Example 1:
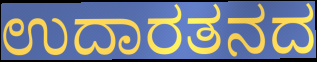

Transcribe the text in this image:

ಉದಾರತನದ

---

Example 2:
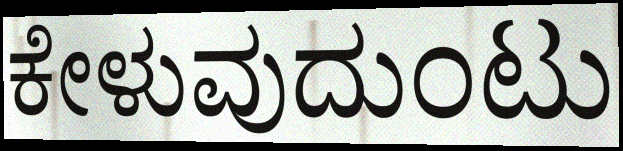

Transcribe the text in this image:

ಕೇಳುವುದುಂಟು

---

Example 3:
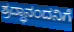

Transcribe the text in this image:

ಶ್ರದ್ಧಾನಂದನಿಗೆ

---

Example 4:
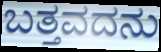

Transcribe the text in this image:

ಬತ್ತವದನು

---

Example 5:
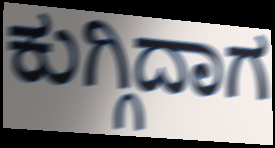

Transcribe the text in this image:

ಕುಗ್ಗಿದಾಗ